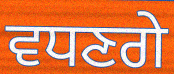
ਵਧਣਗੇ